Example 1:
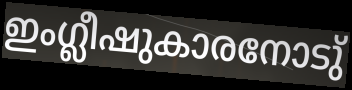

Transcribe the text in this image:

ഇംഗ്ലീഷുകാരനോടു്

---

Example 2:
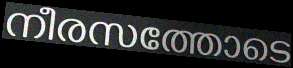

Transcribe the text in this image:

നീരസത്തോടെ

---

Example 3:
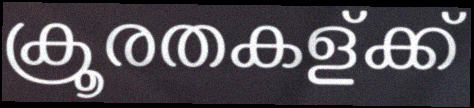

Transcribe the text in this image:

ക്രൂരതകള്ക്ക്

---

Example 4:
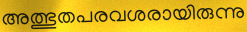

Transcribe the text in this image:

അത്ഭുതപരവശരായിരുന്നു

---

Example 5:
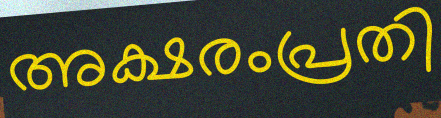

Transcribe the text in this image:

അക്ഷരംപ്രതി